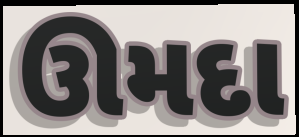
ઊમદા